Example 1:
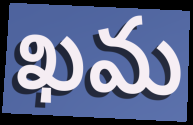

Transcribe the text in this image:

ఖమ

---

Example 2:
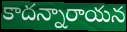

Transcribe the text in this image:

కాదన్నారాయన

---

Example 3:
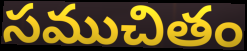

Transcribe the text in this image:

సముచితం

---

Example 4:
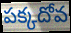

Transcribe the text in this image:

పక్కదోవ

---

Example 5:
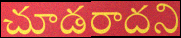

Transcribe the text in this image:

చూడరాదని